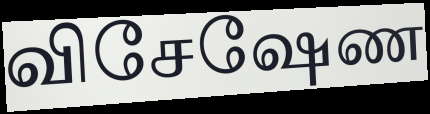
விசேஷேண